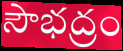
సౌభద్రం